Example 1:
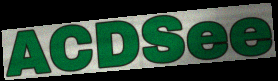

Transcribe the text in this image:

ACDSee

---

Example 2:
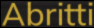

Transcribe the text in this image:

Abritti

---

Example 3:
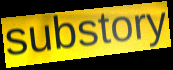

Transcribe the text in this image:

substory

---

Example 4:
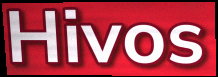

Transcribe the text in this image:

Hivos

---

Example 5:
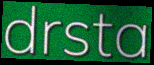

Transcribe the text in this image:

drsta